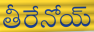
తీరేనోయ్